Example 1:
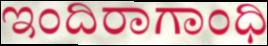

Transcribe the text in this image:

ಇಂದಿರಾಗಾಂಧಿ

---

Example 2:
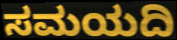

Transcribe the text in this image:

ಸಮಯದಿ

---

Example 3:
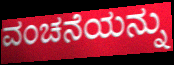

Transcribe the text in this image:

ವಂಚನೆಯನ್ನು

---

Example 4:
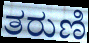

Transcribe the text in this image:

ತರುಣಿ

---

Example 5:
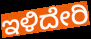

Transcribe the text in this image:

ಇಳಿದೇರಿ